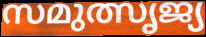
സമുത്സൃജ്യ